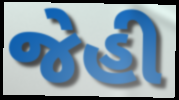
જેહી